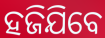
ହଜିଯିବେ